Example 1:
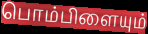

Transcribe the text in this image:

பொம்பிளையும்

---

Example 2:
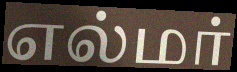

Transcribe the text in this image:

எல்மர்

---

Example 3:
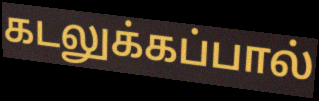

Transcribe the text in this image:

கடலுக்கப்பால்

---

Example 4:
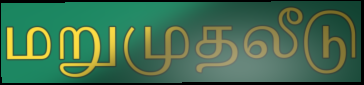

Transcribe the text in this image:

மறுமுதலீடு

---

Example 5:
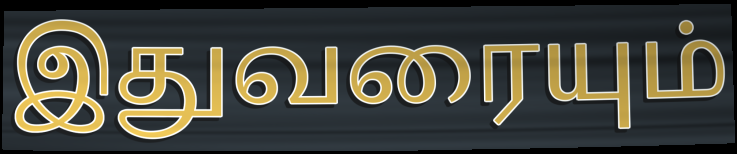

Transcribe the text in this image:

இதுவரையும்